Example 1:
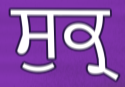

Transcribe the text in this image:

ਸੁਕ੍ਰ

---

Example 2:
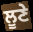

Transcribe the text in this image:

ਲੂਣੇ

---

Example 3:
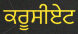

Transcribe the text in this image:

ਕਰੂਸੀਏਟ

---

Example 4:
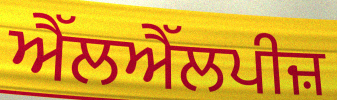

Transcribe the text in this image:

ਐੱਲਐੱਲਪੀਜ਼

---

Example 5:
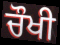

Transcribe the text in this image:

ਚੌਖੀ